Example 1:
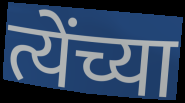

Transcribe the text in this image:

त्येंच्या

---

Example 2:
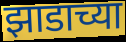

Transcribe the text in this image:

झाडाच्या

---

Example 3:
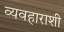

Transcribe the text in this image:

व्यवहाराशी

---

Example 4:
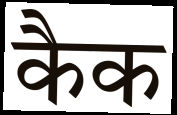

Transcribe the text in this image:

कैक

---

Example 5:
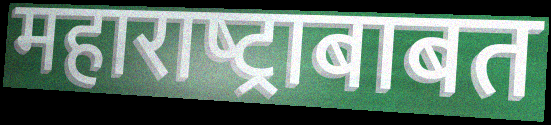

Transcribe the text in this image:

महाराष्ट्राबाबत